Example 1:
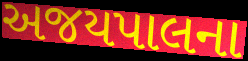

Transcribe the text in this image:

અજયપાલના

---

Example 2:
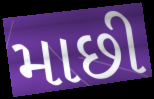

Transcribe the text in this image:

માછી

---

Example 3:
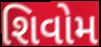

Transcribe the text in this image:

શિવોમ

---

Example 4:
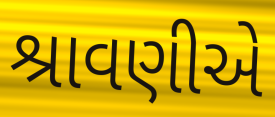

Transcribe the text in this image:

શ્રાવણીએ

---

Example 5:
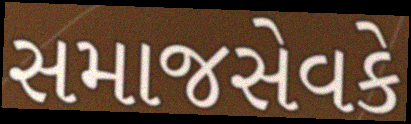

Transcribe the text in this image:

સમાજસેવકે